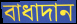
বাধাদান